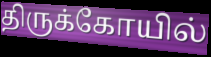
திருக்கோயில்